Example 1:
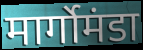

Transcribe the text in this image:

मार्गोमंडा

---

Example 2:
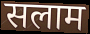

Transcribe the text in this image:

सलाम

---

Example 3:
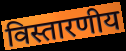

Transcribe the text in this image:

विस्तारणीय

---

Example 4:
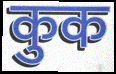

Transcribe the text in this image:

कुक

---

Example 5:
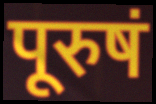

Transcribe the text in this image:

पूरुषं